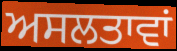
ਅਸਲਤਾਵਾਂ